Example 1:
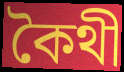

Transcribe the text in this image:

কৈথী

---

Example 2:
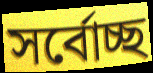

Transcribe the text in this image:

সৰ্বোচ্ছ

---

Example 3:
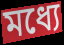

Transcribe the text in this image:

মধ্যে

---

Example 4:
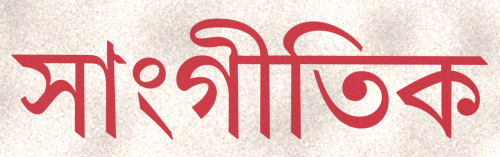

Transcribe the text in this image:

সাংগীতিক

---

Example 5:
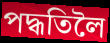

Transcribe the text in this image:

পদ্ধতিলৈ